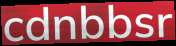
cdnbbsr